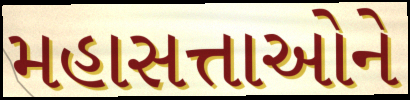
મહાસત્તાઓને